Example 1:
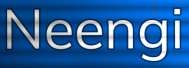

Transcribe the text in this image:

Neengi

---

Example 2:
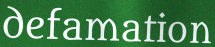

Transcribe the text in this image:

defamation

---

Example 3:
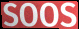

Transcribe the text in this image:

SOOS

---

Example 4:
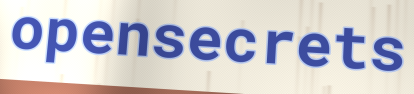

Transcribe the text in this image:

opensecrets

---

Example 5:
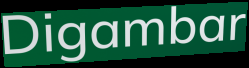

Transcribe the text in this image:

Digambar